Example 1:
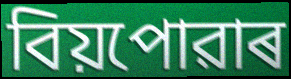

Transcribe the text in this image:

বিয়পোৱাৰ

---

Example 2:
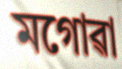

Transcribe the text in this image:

মগোৱা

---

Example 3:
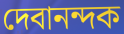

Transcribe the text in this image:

দেবানন্দক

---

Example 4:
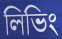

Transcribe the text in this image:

লিভিং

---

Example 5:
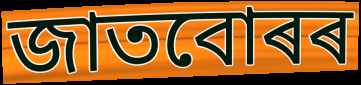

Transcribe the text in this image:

জাতবোৰৰ